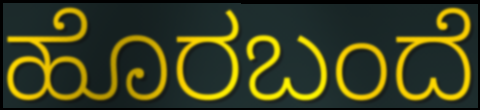
ಹೊರಬಂದೆ